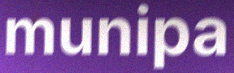
munipa